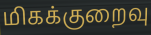
மிகக்குறைவு